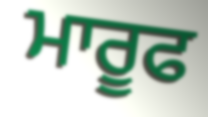
ਮਾਰੂਫ